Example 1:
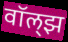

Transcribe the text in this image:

वॉल्झ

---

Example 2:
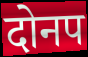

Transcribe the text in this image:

दोनप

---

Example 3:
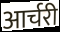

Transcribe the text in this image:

आर्चरी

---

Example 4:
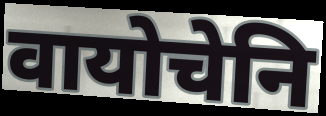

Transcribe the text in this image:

वायोचेनि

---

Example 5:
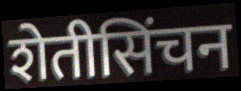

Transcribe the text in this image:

शेतीसिंचन